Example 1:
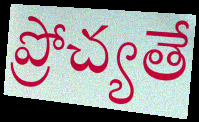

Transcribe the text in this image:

ప్రోచ్యతే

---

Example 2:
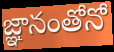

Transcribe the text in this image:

జ్ఞానంతోనో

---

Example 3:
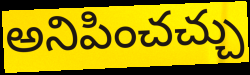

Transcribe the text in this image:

అనిపించచ్చు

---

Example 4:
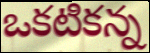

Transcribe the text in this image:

ఒకటికన్న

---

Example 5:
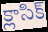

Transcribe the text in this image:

క్లాసిక్